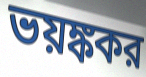
ভয়ঙ্ককর